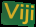
Viji